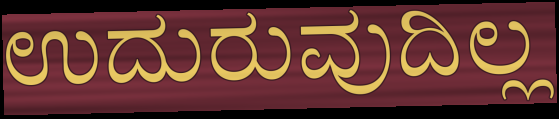
ಉದುರುವುದಿಲ್ಲ